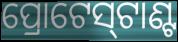
ପ୍ରୋଟେସ୍‌ଟାଣ୍ଟ